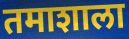
तमाशाला